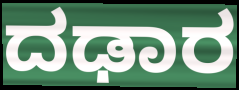
ದಢಾರ